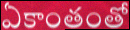
ఏకాంతంతో